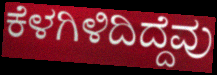
ಕೆಳಗಿಳಿದಿದ್ದೆವು